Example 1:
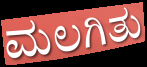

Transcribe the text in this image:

ಮಲಗಿತು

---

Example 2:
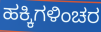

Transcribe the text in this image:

ಹಕ್ಕಿಗಳಿಂಚರ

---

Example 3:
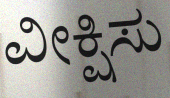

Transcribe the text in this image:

ವೀಕ್ಷಿಸು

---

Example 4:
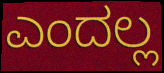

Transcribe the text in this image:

ಎಂದಲ್ಲ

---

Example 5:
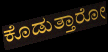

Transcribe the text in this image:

ಕೊಡುತ್ತಾರೋ